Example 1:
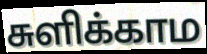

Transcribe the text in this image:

சுளிக்காம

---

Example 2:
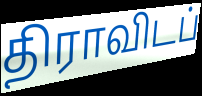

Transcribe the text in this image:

திராவிடப்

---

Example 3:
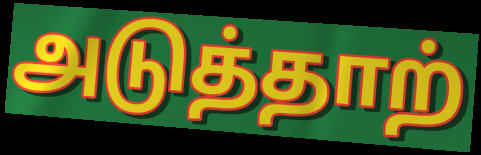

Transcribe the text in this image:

அடுத்தாற்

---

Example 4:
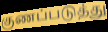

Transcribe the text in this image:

குணப்படுத்து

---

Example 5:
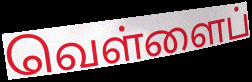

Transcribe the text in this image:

வெள்ளைப்